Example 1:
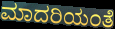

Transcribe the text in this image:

ಮಾದರಿಯಂತೆ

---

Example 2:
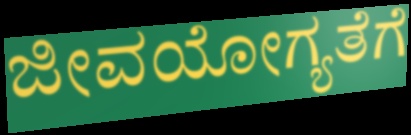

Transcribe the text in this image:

ಜೀವಯೋಗ್ಯತೆಗೆ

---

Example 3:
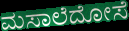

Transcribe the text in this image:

ಮಸಾಲೆದೋಸೆ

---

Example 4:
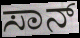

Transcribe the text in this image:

ಸಾನ್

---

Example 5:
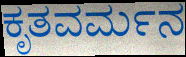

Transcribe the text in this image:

ಕೃತವರ್ಮನ